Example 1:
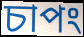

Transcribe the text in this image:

চাপং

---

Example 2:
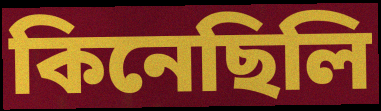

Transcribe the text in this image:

কিনেছিলি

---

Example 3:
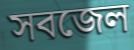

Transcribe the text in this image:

সবজেল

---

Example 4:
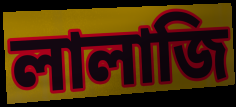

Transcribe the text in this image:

লালাজি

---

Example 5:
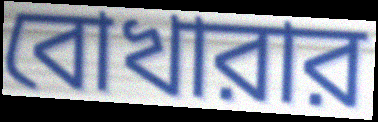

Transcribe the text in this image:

বোখারার